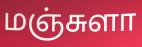
மஞ்சுளா